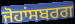
ਜੋਹਾਂਸਬਰਗ